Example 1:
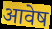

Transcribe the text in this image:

आवेष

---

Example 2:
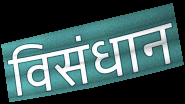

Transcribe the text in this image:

विसंधान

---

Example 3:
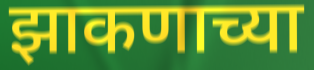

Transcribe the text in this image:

झाकणाच्या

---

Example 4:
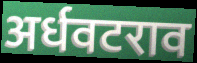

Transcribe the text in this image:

अर्धवटराव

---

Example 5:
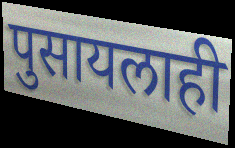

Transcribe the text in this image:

पुसायलाही